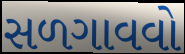
સળગાવવો